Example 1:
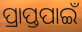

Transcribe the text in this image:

ପ୍ରାପ୍ତପାଇଁ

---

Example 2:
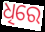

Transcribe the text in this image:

ଧିରେ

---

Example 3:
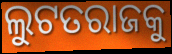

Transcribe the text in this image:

ଲୁଟତରାଜକୁ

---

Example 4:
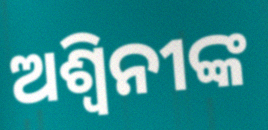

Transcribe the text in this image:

ଅଶ୍ୱିନୀଙ୍କ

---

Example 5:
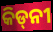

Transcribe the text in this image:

କିଡ୍‍ନୀ